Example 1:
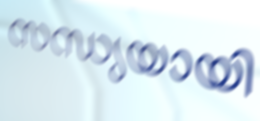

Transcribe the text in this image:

സന്ധ്യയായി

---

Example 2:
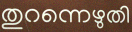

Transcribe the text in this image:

തുറന്നെഴുതി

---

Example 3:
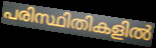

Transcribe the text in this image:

പരിസ്ഥിതികളിൽ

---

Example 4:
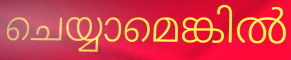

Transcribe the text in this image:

ചെയ്യാമെങ്കിൽ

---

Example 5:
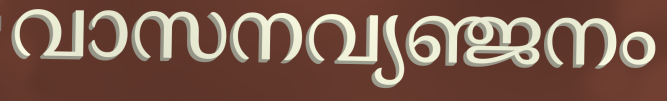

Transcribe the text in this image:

വാസനവ്യഞ്ജനം